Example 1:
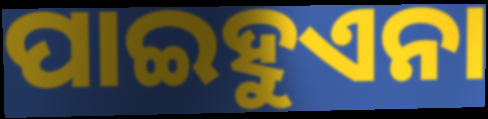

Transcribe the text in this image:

ପାଇହୁଏନା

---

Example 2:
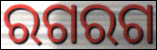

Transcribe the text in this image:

ରଗରଗ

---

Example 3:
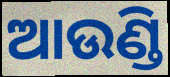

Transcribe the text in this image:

ଆଉଣ୍ଡି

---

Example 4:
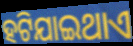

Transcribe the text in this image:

ହଟିଯାଇଥାଏ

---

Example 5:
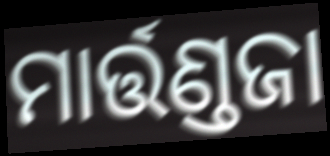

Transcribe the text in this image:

ମାର୍ତ୍ତଣ୍ଡଜା